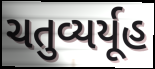
ચતુવ્યર્યૂહ